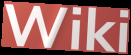
Wiki